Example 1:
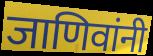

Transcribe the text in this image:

जाणिवांनी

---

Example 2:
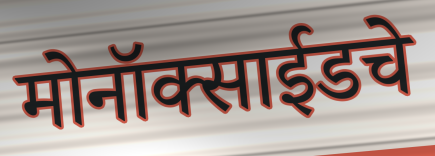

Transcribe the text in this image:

मोनॉक्साईडचे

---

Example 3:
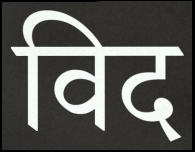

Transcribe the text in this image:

विद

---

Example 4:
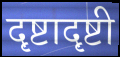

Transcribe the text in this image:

दृष्टादृष्टी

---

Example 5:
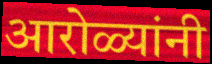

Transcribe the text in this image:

आरोळ्यांनी